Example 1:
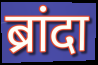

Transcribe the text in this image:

ब्रांदा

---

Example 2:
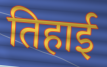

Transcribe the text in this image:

तिहाई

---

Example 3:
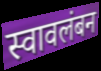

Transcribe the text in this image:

स्वावलंबन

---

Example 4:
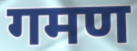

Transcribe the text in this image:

गमण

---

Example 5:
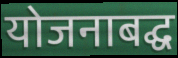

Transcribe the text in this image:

योजनाबद्घ